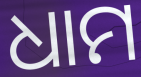
ଧାମ